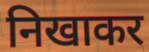
निखाकर